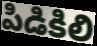
పిడికిలి